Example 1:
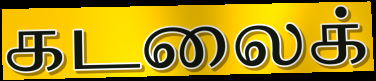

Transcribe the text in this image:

கடலைக்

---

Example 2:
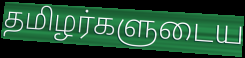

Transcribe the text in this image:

தமிழர்களுடைய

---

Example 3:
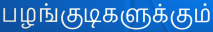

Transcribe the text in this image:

பழங்குடிகளுக்கும்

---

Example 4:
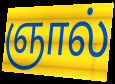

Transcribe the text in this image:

ஞால்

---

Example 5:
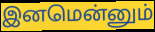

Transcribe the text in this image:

இனமென்னும்